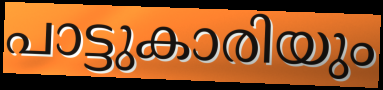
പാട്ടുകാരിയും